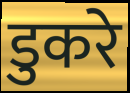
डुकरे